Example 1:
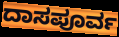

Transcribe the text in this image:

ದಾಸಪೂರ್ವ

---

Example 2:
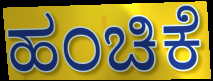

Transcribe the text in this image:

ಹಂಚಿಕೆ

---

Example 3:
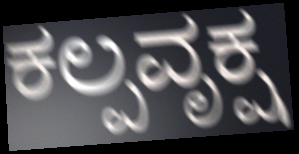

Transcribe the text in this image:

ಕಲ್ಪವೃಕ್ಷ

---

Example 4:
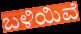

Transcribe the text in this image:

ಬಳಿಯಿವೆ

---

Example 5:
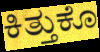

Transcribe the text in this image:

ಕಿತ್ತುಕೊ